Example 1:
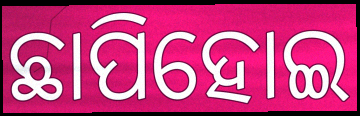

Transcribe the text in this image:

ଛାପିହୋଇ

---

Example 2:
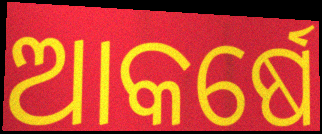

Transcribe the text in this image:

ଆକର୍ଷେ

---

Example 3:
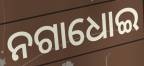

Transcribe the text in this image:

ନଗାଧୋଇ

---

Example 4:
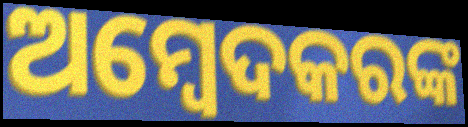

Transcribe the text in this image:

ଅମ୍ବେଦକରଙ୍କ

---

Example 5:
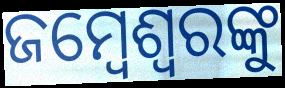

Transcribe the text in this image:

ଜମ୍ବେଶ୍ୱରଙ୍କୁ